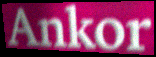
Ankor